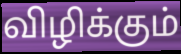
விழிக்கும்